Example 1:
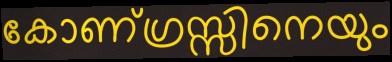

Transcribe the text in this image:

കോണ്ഗ്രസ്സിനെയും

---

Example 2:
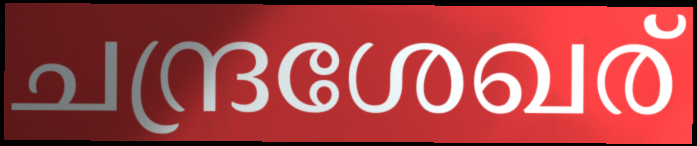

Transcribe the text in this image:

ചന്ദ്രശേഖര്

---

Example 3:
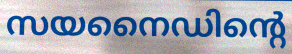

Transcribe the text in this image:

സയനൈഡിന്റെ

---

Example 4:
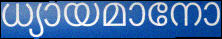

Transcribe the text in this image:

ധ്യായമാനോ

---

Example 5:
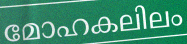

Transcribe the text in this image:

മോഹകലിലം